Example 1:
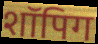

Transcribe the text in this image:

शॉपिग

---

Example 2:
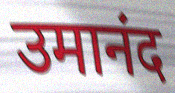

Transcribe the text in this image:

उमानंद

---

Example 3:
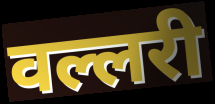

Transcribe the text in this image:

वल्लरी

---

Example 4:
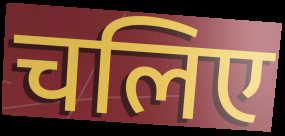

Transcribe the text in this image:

चलिए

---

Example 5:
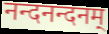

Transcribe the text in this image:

नन्दनन्दनम्